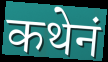
कथेनं